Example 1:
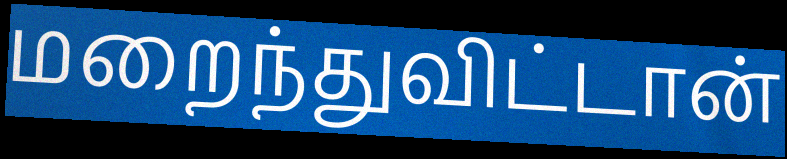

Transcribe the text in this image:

மறைந்துவிட்டான்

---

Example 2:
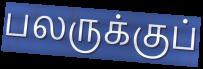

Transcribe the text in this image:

பலருக்குப்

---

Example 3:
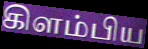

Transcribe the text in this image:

கிளம்பிய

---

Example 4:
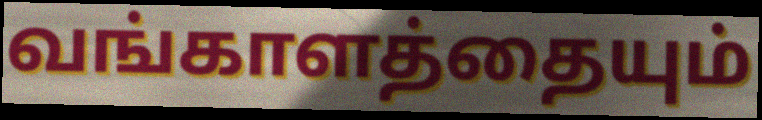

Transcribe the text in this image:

வங்காளத்தையும்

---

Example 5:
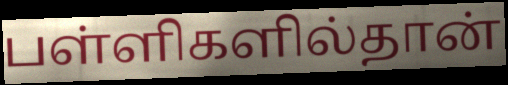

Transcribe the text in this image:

பள்ளிகளில்தான்